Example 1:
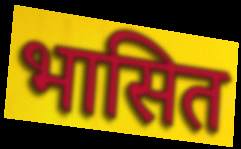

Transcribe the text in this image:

भासित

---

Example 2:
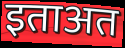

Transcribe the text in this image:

इताअत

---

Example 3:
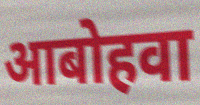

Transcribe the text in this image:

आबोहवा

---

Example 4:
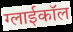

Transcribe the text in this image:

ग्लाईकॉल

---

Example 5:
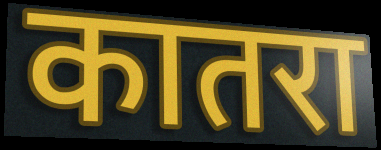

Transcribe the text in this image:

कातरा